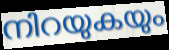
നിറയുകയും